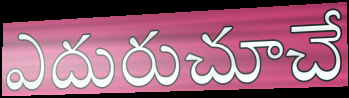
ఎదురుచూచే